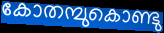
കോതമ്പുകൊണ്ടു